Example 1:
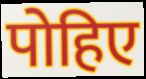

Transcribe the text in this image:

पोहिए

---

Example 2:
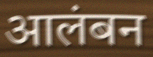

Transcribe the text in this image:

आलंबन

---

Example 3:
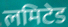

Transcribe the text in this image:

लमिटेड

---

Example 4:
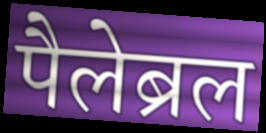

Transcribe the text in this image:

पैलेब्रल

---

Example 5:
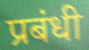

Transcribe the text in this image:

प्रबंधी